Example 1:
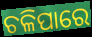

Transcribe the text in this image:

ଚଳିପାରେ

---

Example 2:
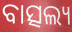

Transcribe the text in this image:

ବାତ୍ସଲ୍ଯ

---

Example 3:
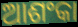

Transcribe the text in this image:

ଆଶଂକା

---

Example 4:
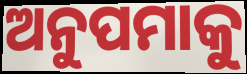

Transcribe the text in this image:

ଅନୁପମାକୁ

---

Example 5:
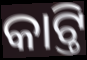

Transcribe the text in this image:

କାଟ୍ତି